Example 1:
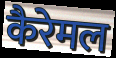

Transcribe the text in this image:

कैरेमल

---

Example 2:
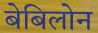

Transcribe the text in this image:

बेबिलोन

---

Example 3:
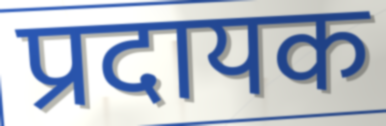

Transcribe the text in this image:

प्रदायक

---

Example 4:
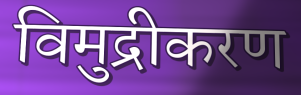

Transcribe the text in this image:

विमुद्रीकरण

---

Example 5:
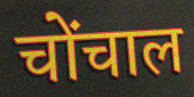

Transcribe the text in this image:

चोंचाल